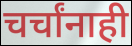
चर्चांनाही